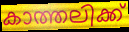
കാത്തലിക്ക്